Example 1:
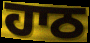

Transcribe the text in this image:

ਹਾਠ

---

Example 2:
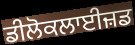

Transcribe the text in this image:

ਡੀਲੋਕਲਾਈਜ਼ਡ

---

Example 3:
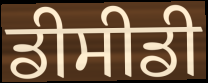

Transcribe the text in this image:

ਡੀਸੀਡੀ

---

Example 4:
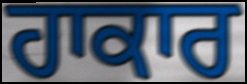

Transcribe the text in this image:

ਹਾਕਾਰ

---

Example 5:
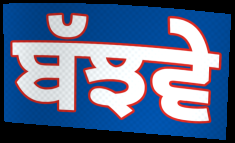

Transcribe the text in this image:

ਬੱਝਵੇ